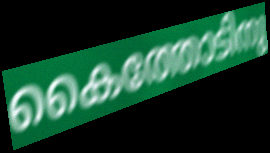
കൈത്തോടിനു